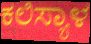
ಕಲಿಸ್ಯಾಳ